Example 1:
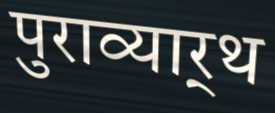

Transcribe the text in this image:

पुराव्यार्थ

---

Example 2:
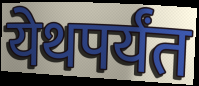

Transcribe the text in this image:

येथपर्यंत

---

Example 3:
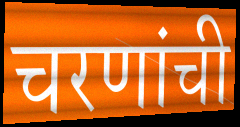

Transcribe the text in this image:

चरणांची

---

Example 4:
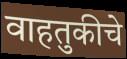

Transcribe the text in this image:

वाहतुकीचे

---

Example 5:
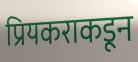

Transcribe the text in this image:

प्रियकराकडून